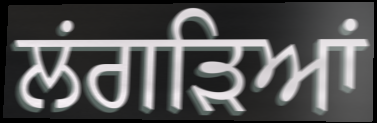
ਲਂਗੜਿਆਂ